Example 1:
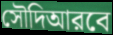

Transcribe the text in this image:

সৌদিআরবে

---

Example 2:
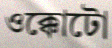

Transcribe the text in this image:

ওক্কোটো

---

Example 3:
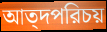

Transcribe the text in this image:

আত্দপরিচয়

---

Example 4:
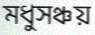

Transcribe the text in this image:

মধুসঞ্চয়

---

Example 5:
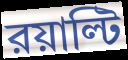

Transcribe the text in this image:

রয়াল্টি